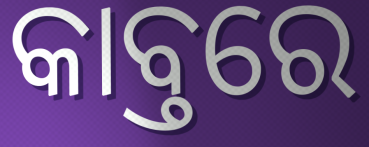
କାବ୍ତରେ